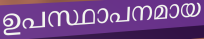
ഉപസ്ഥാപനമായ